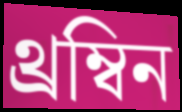
থ্রম্বিন